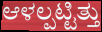
ಆಳಲ್ಪಟ್ಟಿತ್ತು